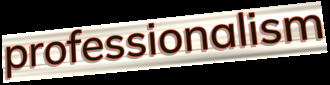
professionalism